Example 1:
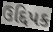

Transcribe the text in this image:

ઉદ્દિપક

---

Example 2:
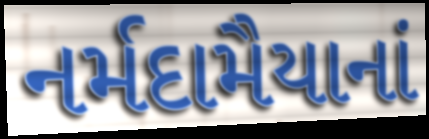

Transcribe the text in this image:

નર્મદામૈયાનાં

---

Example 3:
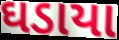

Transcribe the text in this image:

ઘડાયા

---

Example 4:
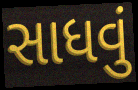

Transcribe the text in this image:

સાધવું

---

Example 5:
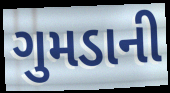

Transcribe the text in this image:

ગુમડાની